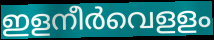
ഇളനീർവെളളം